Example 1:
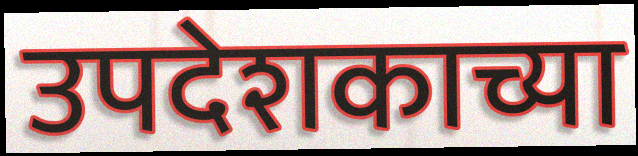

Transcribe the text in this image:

उपदेशकाच्या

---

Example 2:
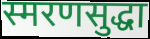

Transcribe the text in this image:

स्मरणसुद्धा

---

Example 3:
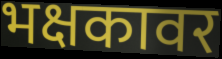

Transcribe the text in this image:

भक्षकावर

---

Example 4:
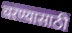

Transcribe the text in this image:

चरण्यासाठी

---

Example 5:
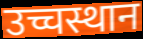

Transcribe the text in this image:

उच्चस्थान